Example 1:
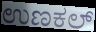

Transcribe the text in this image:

ಉಣಕಲ್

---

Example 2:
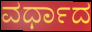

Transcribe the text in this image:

ವರ್ಧಾದ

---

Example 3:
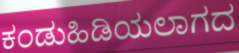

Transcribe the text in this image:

ಕಂಡುಹಿಡಿಯಲಾಗದ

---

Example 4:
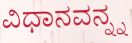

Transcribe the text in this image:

ವಿಧಾನವನ್ನ್ನ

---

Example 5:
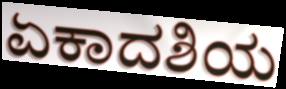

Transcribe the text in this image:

ಏಕಾದಶಿಯ